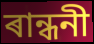
ৰান্ধনী